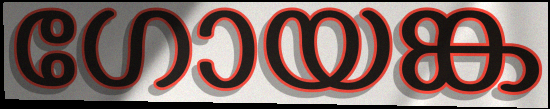
ഗോയങ്ക